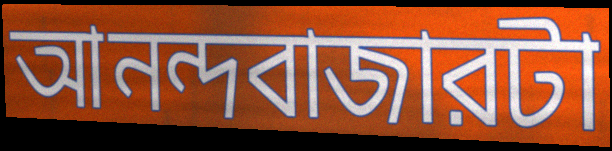
আনন্দবাজারটা